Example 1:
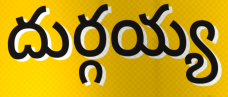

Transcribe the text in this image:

దుర్గయ్య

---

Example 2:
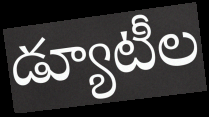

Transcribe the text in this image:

డ్యూటీల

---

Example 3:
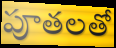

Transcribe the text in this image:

పూతలతో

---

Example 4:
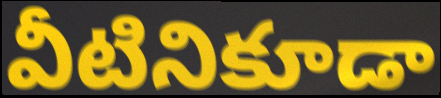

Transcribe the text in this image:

వీటినికూడా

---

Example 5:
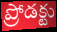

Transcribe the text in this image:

ప్రోడక్టు